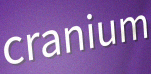
cranium